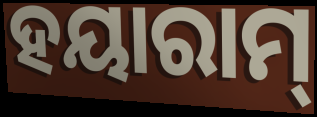
ହୟାରାମ୍